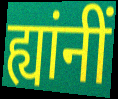
ह्यांनीं